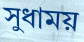
সুধাময়